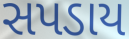
સપડાય